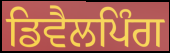
ਡਿਵੈਲਪਿੰਗ